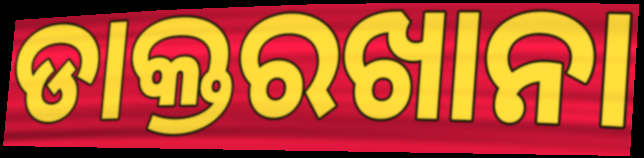
ଡାକ୍ତରଖାନା